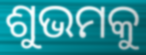
ଶୁଭମକୁ